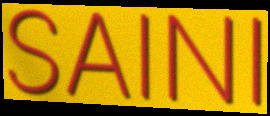
SAINI